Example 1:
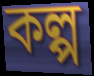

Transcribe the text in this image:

কল্প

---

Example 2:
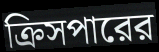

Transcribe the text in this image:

ক্রিসপারের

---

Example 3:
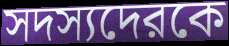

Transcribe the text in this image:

সদস্যদেরকে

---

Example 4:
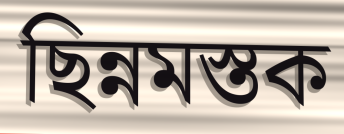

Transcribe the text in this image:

ছিন্নমস্তক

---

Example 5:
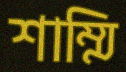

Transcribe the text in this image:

শাম্মি